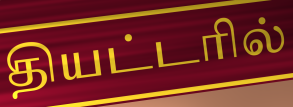
தியட்டரில்